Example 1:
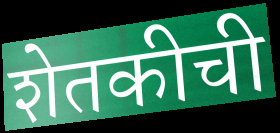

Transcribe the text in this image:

शेतकीची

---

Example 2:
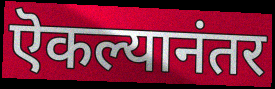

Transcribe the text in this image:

ऎकल्यानंतर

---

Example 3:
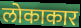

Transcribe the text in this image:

लोकाकार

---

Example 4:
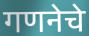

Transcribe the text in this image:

गणनेचे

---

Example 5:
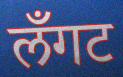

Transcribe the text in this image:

लँगट